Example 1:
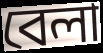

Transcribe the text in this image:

বেলা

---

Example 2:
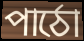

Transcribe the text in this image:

পাঠো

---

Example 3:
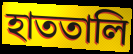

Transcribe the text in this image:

হাততালি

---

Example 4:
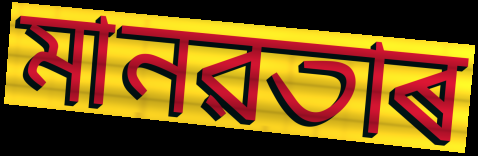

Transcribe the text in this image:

মানৱতাৰ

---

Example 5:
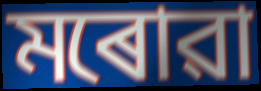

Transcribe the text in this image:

মৰোৱা